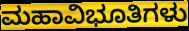
ಮಹಾವಿಭೂತಿಗಳು